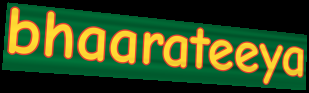
bhaarateeya